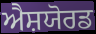
ਐਸ਼ਯੋਰਡ